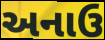
અનાઉ